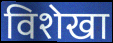
विशेखा